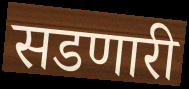
सडणारी